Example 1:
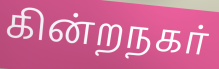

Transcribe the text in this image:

கின்றநகர்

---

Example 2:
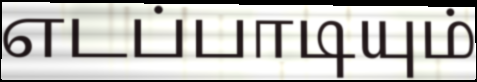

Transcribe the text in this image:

எடப்பாடியும்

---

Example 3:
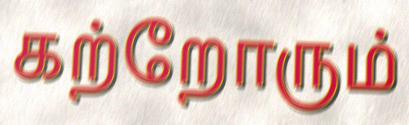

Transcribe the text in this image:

கற்றோரும்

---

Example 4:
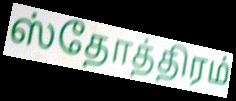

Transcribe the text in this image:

ஸ்தோத்திரம்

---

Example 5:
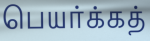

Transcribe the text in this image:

பெயர்க்கத்